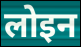
लोइन